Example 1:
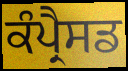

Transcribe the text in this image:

ਕੰਪ੍ਰੈਸਡ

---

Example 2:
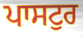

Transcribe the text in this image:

ਪਾਸਟੁਰ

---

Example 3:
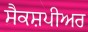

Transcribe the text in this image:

ਸੈਕਸ਼ਪੀਅਰ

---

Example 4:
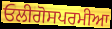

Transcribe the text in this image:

ਓਲੀਗੋਸਪਰਮੀਆ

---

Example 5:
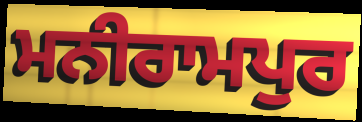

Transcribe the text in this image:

ਮਨੀਰਾਮਪੁਰ